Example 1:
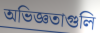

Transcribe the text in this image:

অভিজ্ঞতাগুলি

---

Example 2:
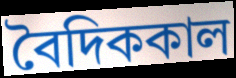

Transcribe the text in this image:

বৈদিককাল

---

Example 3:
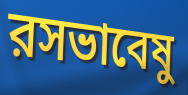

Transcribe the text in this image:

রসভাবেষু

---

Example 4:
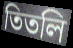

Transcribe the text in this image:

তিতলি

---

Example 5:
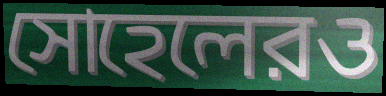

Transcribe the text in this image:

সোহেলেরও